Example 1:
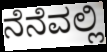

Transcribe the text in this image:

ನೆನೆವಲ್ಲಿ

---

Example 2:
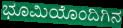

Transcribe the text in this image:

ಭೂಮಿಯೊಂದಿಗಿನ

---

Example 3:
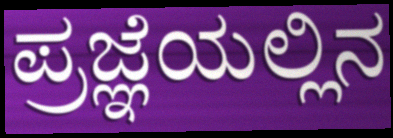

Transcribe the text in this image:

ಪ್ರಜ್ಞೆಯಲ್ಲಿನ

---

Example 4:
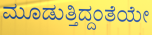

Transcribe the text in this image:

ಮೂಡುತ್ತಿದ್ದಂತೆಯೇ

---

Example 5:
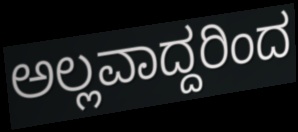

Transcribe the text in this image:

ಅಲ್ಲವಾದ್ದರಿಂದ